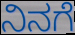
ನಿನಗೆ